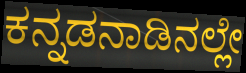
ಕನ್ನಡನಾಡಿನಲ್ಲೇ